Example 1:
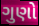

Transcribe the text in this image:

ગુણો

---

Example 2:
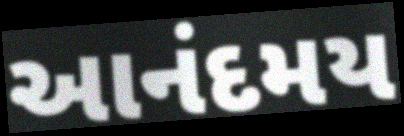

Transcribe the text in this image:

આનંદમય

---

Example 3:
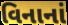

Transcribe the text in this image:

વિનાનાં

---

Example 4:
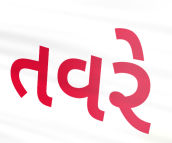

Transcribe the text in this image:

તવરે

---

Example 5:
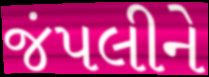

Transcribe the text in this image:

જંપલીને